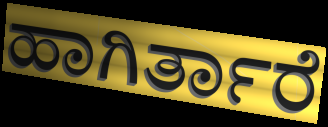
ಹಾಗಿರ್ತಾರೆ